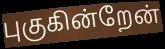
புகுகின்றேன்